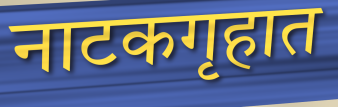
नाटकगृहात